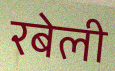
रबेली